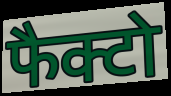
फैक्टो